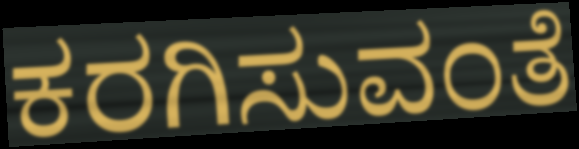
ಕರಗಿಸುವಂತೆ